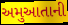
અમુઆતાની